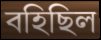
বহিছিল